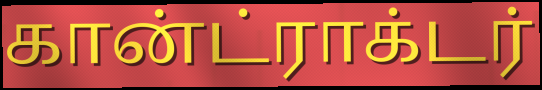
கான்ட்ராக்டர்